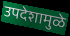
उपदेशामुळे